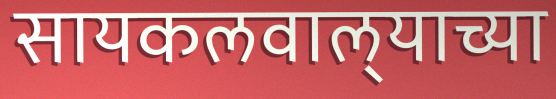
सायकलवाल्याच्या